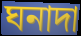
ঘনাদা